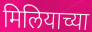
मिलियाच्या